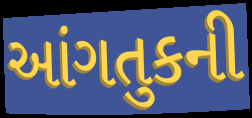
આંગતુકની